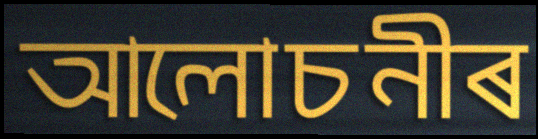
আলোচনীৰ